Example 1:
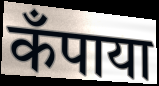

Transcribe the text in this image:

कँपाया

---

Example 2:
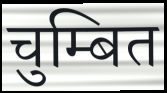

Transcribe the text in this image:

चुम्बित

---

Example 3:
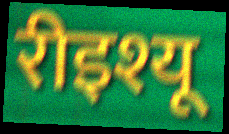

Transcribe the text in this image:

रीइश्यू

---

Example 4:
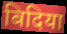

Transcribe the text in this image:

बिदिया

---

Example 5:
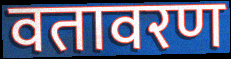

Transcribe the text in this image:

वतावरण